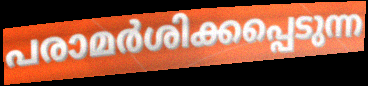
പരാമർശിക്കപ്പെടുന്ന